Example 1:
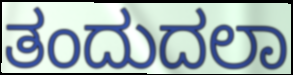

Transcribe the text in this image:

ತಂದುದಲಾ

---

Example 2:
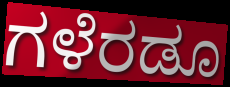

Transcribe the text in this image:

ಗಳೆರಡೂ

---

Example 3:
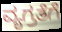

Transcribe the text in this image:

ವ್ಯಗ್ರತೆಗೆ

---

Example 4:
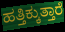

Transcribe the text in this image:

ಹತ್ತಿಕ್ಕುತ್ತಾರೆ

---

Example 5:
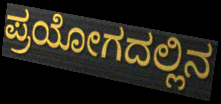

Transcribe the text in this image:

ಪ್ರಯೋಗದಲ್ಲಿನ